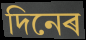
দিনেৰ